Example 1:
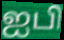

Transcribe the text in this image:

ஐபி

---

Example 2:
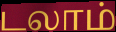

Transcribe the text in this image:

டலாம்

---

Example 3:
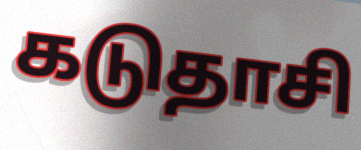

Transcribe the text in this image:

கடுதாசி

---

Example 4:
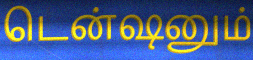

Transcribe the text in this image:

டென்ஷனும்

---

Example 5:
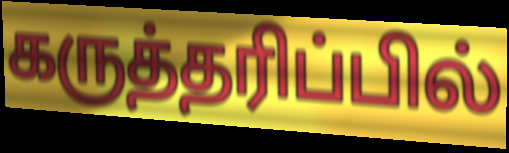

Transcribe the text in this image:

கருத்தரிப்பில்